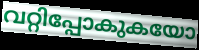
വറ്റിപ്പോകുകയോ